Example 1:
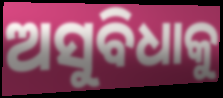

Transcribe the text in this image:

ଅସୁବିଧାକୁ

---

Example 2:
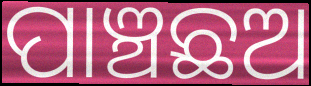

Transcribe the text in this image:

ପାଞ୍ଚଛଅ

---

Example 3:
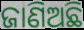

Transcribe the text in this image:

ଜାଣିଅଛି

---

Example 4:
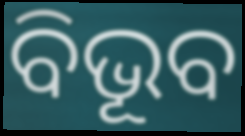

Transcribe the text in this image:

ବିଭୂବ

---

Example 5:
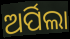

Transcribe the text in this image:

ଅର୍ପିଲା